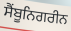
ਸੈਂਬੂਨਿਗਰੀਨ